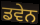
ਡਵੇਨ